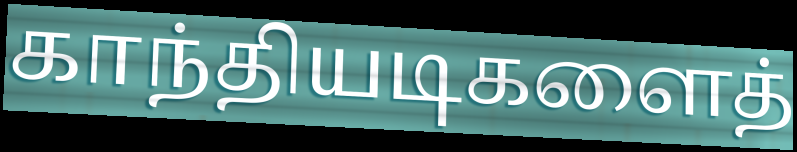
காந்தியடிகளைத்